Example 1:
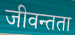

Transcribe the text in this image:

जीवन्तता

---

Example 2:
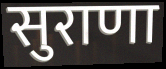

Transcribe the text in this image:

सुराणा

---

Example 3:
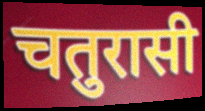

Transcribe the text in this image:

चतुरासी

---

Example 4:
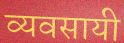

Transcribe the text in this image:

व्यवसायी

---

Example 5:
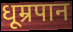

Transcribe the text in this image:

धूम्रपान